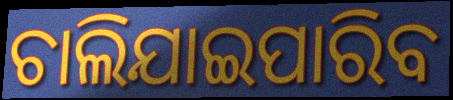
ଚାଲିଯାଇପାରିବ